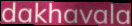
dakhavala